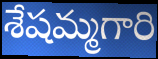
శేషమ్మగారి